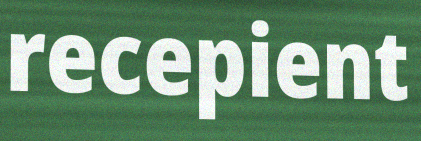
recepient